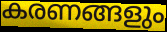
കരണങ്ങളും